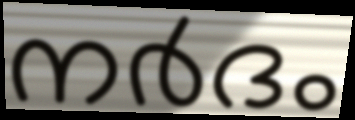
നർദം